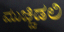
ಮುಚ್ಚಿಡಲಿ